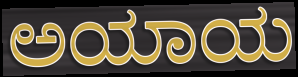
ಅಯಾಯ